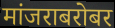
मांजराबरोबर